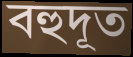
বহুদূত